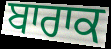
ਬਾਰਾਕ